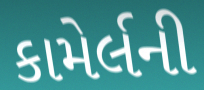
કામેર્લની